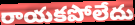
రాయకపోలేదు